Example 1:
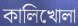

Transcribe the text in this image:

কালিখোলা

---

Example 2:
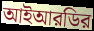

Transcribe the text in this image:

আইআরডির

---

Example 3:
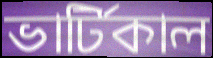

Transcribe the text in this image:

ভার্টিকাল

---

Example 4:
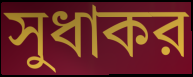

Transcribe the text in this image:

সুধাকর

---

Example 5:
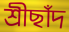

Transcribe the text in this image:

শ্রীছাঁদ